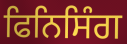
ਫਿਨਿਸਿੰਗ